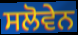
ਸਲੋਵੇਨ